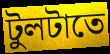
টুলটাতে